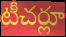
టీచర్లూ